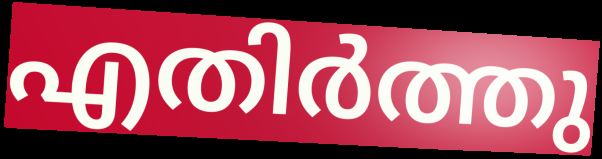
എതിർത്തു